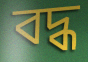
বদ্ধ